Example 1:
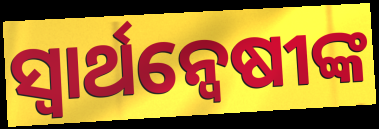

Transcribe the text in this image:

ସ୍ୱାର୍ଥନ୍ୱେଷୀଙ୍କ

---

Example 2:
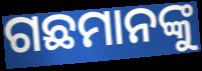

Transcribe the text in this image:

ଗଛମାନଙ୍କୁ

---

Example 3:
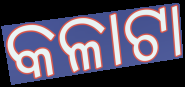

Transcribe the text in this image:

କଳାଟା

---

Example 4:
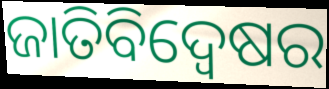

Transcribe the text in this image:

ଜାତିବିଦ୍ୱେଷର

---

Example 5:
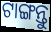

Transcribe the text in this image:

ଟାଙ୍ଗନ୍ତୁ